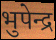
भुपेन्द्र